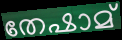
തേഷാമ്